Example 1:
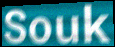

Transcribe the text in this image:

Souk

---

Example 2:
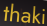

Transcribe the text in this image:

thaki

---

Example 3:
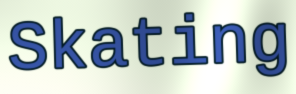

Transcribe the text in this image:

Skating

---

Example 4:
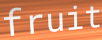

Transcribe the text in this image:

fruit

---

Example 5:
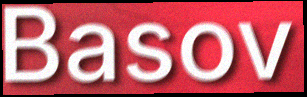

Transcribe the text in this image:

Basov